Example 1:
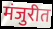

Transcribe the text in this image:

मंजुरीत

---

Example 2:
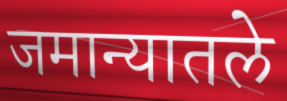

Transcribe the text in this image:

जमान्यातले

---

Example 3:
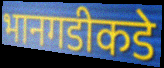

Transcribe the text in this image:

भानगडीकडे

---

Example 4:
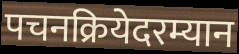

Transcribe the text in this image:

पचनक्रियेदरम्यान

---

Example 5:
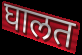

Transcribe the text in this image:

घालत